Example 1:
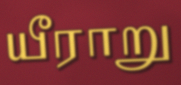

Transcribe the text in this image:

யீராறு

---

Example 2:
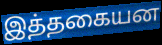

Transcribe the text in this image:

இத்தகையன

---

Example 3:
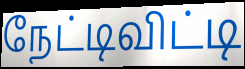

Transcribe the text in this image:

நேட்டிவிட்டி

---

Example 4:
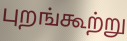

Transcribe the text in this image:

புறங்கூற்று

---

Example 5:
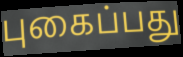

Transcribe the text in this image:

புகைப்பது